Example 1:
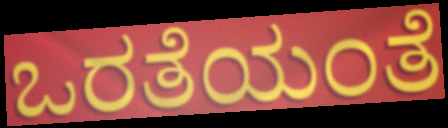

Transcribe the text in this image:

ಒರತೆಯಂತೆ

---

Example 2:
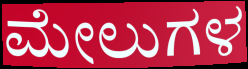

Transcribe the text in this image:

ಮೇಲುಗಳ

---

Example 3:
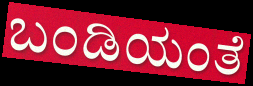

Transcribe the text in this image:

ಬಂಡಿಯಂತೆ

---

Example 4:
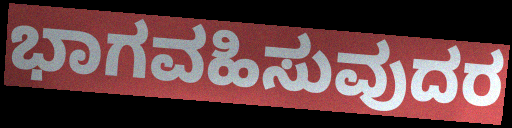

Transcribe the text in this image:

ಭಾಗವಹಿಸುವುದರ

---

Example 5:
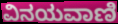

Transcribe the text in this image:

ವಿನಯವಾಣಿ